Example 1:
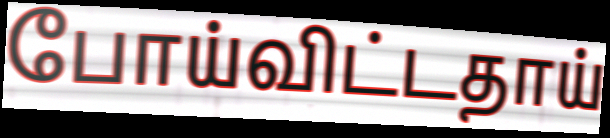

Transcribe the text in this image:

போய்விட்டதாய்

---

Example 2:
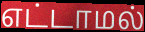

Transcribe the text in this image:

எட்டாமல்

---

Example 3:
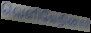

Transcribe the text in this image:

வெளியேறினார்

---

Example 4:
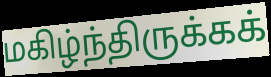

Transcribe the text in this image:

மகிழ்ந்திருக்கக்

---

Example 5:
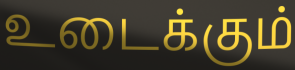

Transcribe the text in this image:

உடைக்கும்